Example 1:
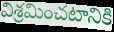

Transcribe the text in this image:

విశ్రమించటానికి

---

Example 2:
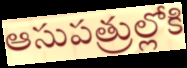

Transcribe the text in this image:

ఆసుపత్రుల్లోకి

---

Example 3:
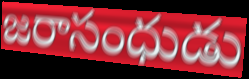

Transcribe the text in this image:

జరాసంధుడు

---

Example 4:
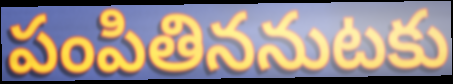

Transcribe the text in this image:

పంపితిననుటకు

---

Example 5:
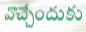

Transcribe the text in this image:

వొచ్చేందుకు